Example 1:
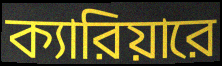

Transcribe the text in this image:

ক্যারিয়ারে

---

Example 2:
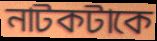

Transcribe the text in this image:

নাটকটাকে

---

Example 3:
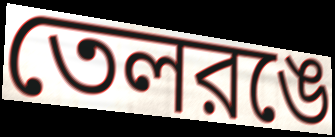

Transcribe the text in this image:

তেলরঙে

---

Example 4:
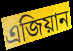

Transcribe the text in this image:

এজিয়ান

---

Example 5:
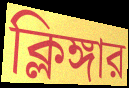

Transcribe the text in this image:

ক্লিঙ্গার